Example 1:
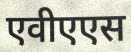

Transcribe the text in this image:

एवीएएस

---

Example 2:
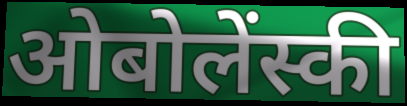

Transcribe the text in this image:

ओबोलेंस्की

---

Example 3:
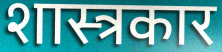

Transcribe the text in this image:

शास्त्रकार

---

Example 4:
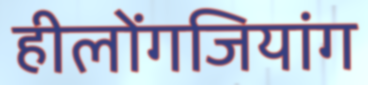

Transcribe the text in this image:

हीलोंगजियांग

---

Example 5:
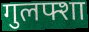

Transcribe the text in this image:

गुलफ्शा